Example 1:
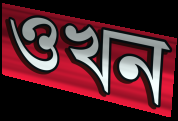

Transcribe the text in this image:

ওখন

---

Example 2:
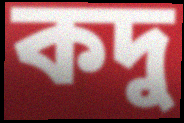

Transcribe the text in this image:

কদু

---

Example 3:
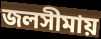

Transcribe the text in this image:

জলসীমায়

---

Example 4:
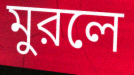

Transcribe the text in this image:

মুরলে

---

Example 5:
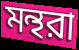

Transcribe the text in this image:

মন্থরা